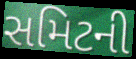
સમિટની